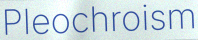
Pleochroism